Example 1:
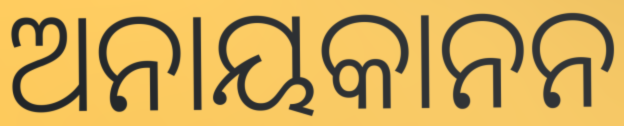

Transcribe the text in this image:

ଅନାୟକାନନ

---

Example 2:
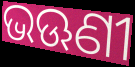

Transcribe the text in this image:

ଭଊଣୀ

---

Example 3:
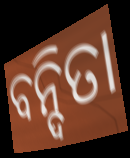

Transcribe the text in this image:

ବନ୍ଦିତା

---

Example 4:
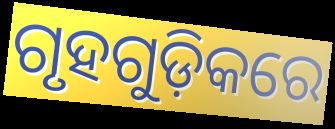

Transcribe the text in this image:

ଗୃହଗୁଡ଼ିକରେ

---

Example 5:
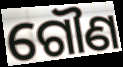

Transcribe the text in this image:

ଗୌଣ